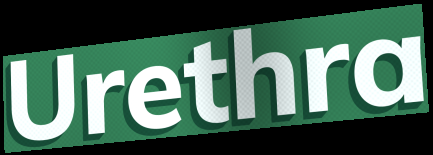
Urethra